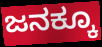
ಜನಕ್ಕೂ